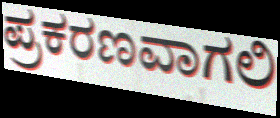
ಪ್ರಕರಣವಾಗಲಿ